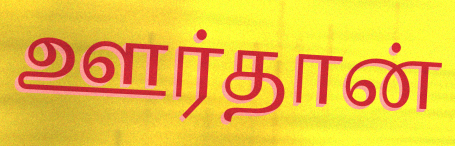
ஊர்தான்